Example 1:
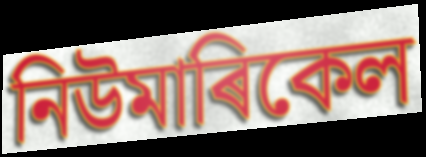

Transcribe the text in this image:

নিউমাৰিকেল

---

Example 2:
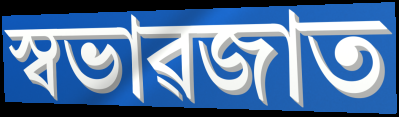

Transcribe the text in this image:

স্বভাৱজাত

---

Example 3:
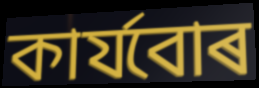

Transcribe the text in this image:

কাৰ্যবোৰ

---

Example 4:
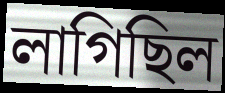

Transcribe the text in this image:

লাগিছিল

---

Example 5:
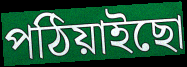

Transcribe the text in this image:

পঠিয়াইছো